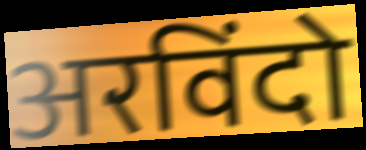
अरविंदो